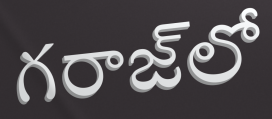
గరాజ్‌లో